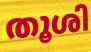
തൂശി